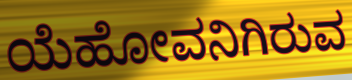
ಯೆಹೋವನಿಗಿರುವ